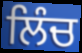
ਲਿੰਚ